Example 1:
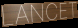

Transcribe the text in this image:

LANCET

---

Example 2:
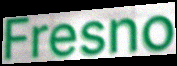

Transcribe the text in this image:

Fresno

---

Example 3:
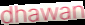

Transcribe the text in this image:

dhawan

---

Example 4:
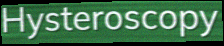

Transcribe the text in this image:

Hysteroscopy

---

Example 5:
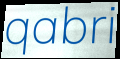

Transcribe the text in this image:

qabri